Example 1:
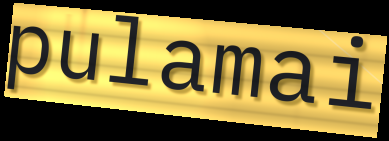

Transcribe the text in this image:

pulamai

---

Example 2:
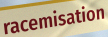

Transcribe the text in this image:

racemisation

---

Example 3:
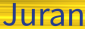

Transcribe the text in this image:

Juran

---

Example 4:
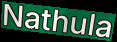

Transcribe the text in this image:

Nathula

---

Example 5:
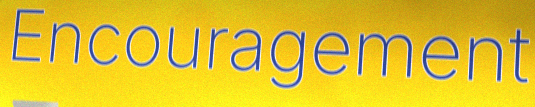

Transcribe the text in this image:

Encouragement